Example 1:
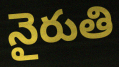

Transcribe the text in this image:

నైరుతి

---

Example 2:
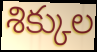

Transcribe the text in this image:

శిక్కుల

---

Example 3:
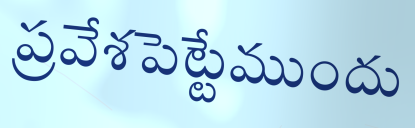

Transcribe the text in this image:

ప్రవేశపెట్టేముందు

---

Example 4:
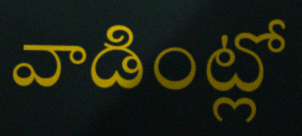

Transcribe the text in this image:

వాడింట్లో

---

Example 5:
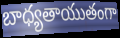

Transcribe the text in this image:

బాధ్యతాయుతంగా